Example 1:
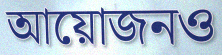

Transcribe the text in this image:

আয়োজনও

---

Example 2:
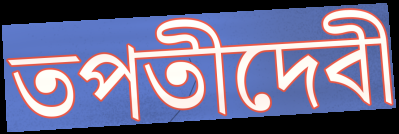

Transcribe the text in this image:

তপতীদেবী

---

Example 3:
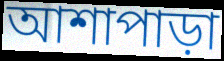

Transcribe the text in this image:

আশাপাড়া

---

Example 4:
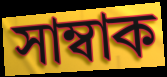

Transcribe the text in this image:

সাম্বাক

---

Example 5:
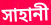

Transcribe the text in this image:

সাহানী